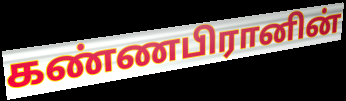
கண்ணபிரானின்